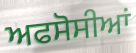
ਅਫਸੋਸੀਆਂ